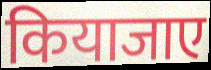
कियाजाए